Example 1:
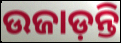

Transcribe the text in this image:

ଉଜାଡ଼ନ୍ତି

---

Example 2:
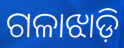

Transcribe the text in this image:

ଗଳାଝାଡ଼ି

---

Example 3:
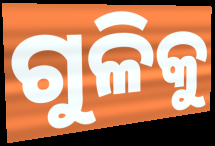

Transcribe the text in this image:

ଗୁଳିକୁ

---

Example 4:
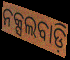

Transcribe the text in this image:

ନକ୍ସଲବାଡ଼ି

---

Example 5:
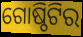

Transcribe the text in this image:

ଗୋଷ୍ଠିଟିର